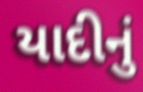
યાદીનું